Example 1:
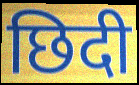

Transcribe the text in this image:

छिदी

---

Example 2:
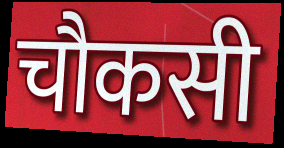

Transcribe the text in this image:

चौकसी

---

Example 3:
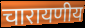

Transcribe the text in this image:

चारायणीय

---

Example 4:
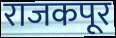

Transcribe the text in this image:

राजकपूर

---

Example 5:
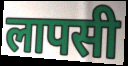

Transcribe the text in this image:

लापसी